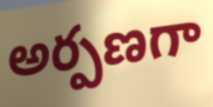
అర్పణగా